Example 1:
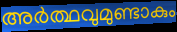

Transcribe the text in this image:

അർത്ഥവുമുണ്ടാകും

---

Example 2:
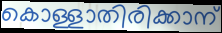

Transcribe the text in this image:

കൊള്ളാതിരിക്കാന്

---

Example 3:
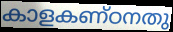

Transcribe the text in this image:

കാളകണ്ഠനതു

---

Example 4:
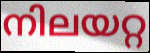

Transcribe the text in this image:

നിലയറ്റ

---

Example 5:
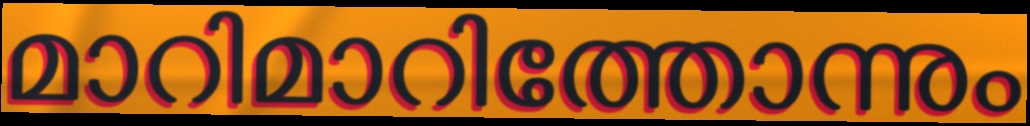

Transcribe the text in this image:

മാറിമാറിത്തോന്നും